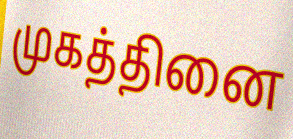
முகத்தினை